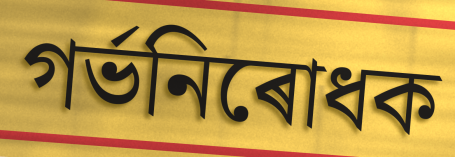
গৰ্ভনিৰোধক